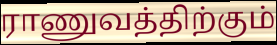
ராணுவத்திற்கும்